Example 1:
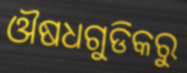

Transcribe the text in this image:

ଔଷଧଗୁଡିକରୁ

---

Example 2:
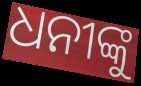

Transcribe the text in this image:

ଧନୀଙ୍କୁ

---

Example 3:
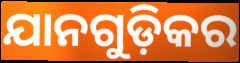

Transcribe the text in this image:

ଯାନଗୁଡ଼ିକର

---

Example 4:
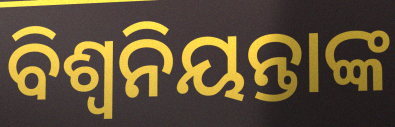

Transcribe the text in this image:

ବିଶ୍ବନିୟନ୍ତାଙ୍କ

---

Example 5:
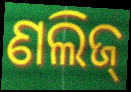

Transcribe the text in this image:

ଣଲିଜ୍